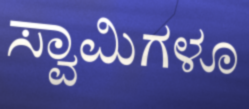
ಸ್ವಾಮಿಗಳೂ